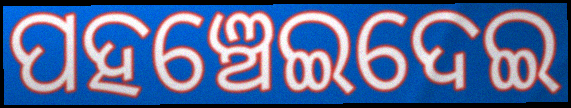
ପହଞ୍ଚେଇଦେଇ